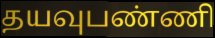
தயவுபண்ணி